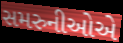
સમરુનીઓએ